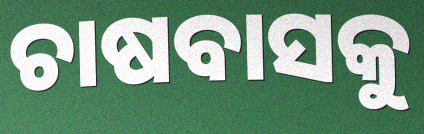
ଚାଷବାସକୁ